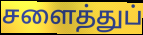
சளைத்துப்